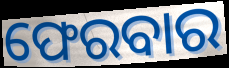
ଫେରବାର